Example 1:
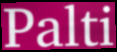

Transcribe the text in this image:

Palti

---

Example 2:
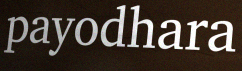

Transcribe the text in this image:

payodhara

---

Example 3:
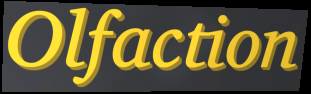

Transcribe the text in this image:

Olfaction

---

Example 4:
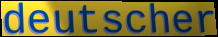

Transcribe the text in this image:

deutscher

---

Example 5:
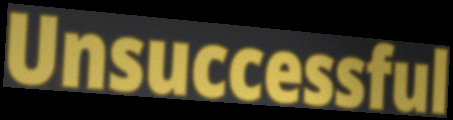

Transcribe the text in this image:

Unsuccessful